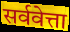
सर्ववेत्ता